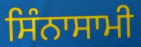
ਸਿੰਨਾਸਾਮੀ